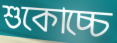
শুকোচ্চে